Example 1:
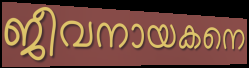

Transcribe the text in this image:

ജീവനായകനെ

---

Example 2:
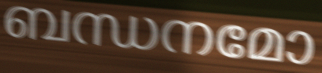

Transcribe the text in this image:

ബന്ധനമോ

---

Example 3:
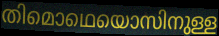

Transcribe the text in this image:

തിമൊഥെയൊസിനുള്ള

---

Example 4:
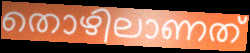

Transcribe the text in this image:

തൊഴിലാണത്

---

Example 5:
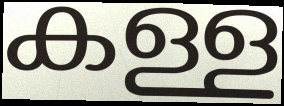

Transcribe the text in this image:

കള്ള